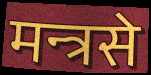
मन्त्रसे